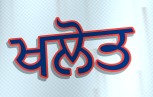
ਖਲੋਤ